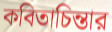
কবিতাচিন্তার